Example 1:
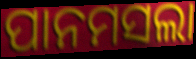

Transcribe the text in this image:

ପାନମସଲା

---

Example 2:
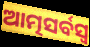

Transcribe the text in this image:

ଆତ୍ମସର୍ବସ୍ଵ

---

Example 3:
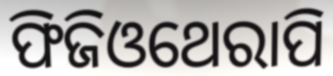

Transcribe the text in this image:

ଫିଜିଓଥେରାପି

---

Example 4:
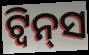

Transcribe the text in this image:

ଟ୍ବିନ୍‌ସ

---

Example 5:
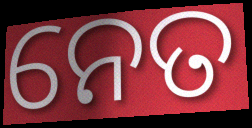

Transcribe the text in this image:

ନେତ